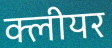
क्लीयर